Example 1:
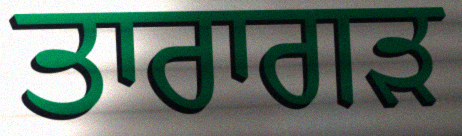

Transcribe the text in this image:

ਤਾਰਾਗੜ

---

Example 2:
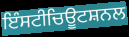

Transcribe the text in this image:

ਇੰਸਟੀਚਿਊਟਸ਼ਨਲ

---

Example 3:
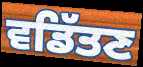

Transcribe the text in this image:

ਵਡਿੱਤਣ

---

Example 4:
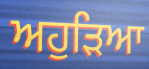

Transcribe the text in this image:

ਅਹੁੜਿਆ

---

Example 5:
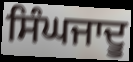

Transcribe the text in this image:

ਸਿੰਘਜਾਦੂ